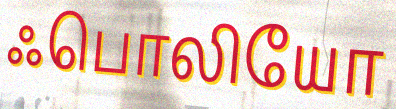
ஃபொலியோ